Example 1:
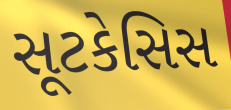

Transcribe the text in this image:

સૂટકેસિસ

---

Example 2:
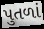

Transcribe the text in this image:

પુતળાં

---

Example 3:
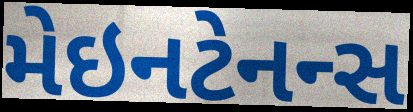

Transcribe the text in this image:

મેઇનટેનન્સ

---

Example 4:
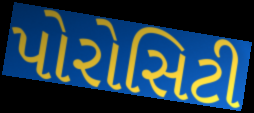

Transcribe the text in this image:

પોરોસિટી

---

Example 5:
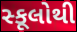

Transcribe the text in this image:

સ્કૂલોથી